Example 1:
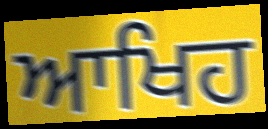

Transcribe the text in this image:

ਆਖਿਹ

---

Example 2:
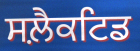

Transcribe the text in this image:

ਸਲ਼ੈਕਟਿਡ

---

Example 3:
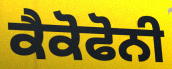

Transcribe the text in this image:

ਕੈਕੋਫੋਨੀ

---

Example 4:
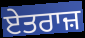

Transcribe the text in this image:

ਏਤਰਾਜ਼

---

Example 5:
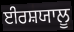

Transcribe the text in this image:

ਈਰਸ਼ਯਾਲੂ